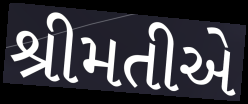
શ્રીમતીએ